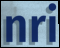
nri